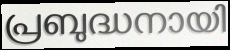
പ്രബുദ്ധനായി